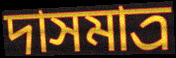
দাসমাত্র